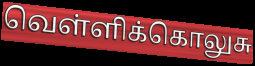
வெள்ளிக்கொலுசு